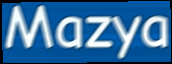
Mazya